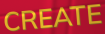
CREATE